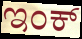
ಇಂಕ್